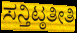
ಸನ್ತಿಟ್ಠತೀತಿ